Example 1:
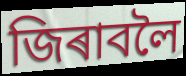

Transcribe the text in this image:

জিৰাবলৈ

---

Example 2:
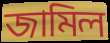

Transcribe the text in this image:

জামিল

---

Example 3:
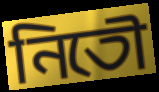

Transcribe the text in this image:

নিতৌ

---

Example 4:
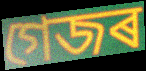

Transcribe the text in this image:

গেজৰ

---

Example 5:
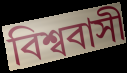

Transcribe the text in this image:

বিশ্ববাসী